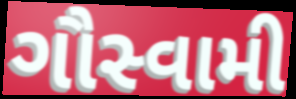
ગૌસ્વામી